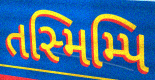
તસ્મિમ્પિ